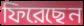
ফিরেছেন